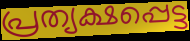
പ്രത്യക്ഷപ്പെട്ട